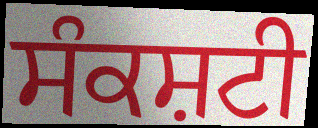
ਸੰਕਸ਼ਟੀ